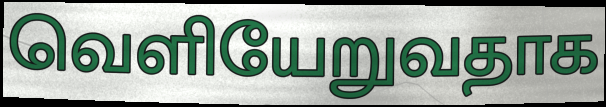
வெளியேறுவதாக